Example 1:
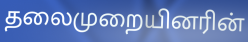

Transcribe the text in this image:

தலைமுறையினரின்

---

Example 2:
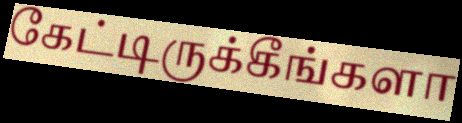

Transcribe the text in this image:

கேட்டிருக்கீங்களா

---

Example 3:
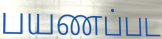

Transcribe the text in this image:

பயணப்பட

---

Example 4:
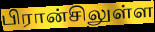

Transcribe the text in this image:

பிரான்சிலுள்ள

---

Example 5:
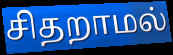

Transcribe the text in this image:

சிதறாமல்